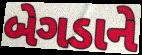
બેગડાને